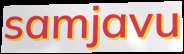
samjavu